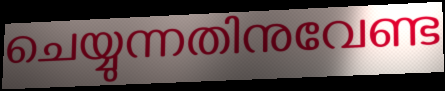
ചെയ്യുന്നതിനുവേണ്ട